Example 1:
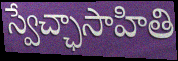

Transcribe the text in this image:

స్వేచ్ఛాసాహితి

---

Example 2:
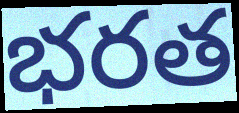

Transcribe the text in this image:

భరత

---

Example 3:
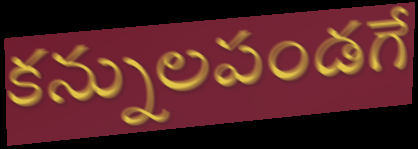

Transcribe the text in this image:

కన్నులపండగే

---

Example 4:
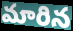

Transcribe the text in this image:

మారిన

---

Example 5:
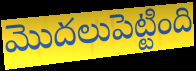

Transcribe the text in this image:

మొదలుపెట్టింది